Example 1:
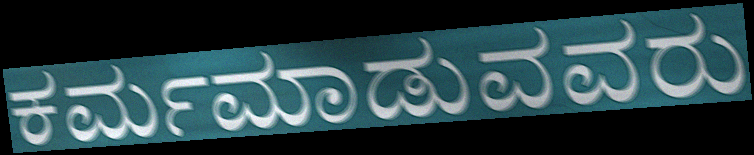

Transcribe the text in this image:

ಕರ್ಮಮಾಡುವವರು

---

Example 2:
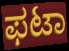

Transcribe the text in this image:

ಫಟಾ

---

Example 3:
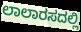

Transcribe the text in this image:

ಲಾಲಾರಸದಲ್ಲಿ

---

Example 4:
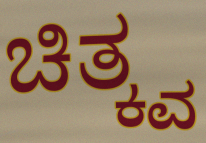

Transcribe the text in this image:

ಚಿತ್ಕ್ವ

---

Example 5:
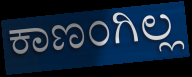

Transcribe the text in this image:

ಕಾಣಂಗಿಲ್ಲ